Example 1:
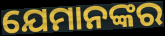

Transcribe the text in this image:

ଯେମାନଙ୍କର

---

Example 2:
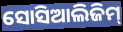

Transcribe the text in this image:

ସୋସିଆଲିଜିମ୍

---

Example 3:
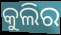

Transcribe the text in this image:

କୁଲିର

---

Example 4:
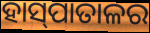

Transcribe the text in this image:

ହାସ୍‍ପାତାଳର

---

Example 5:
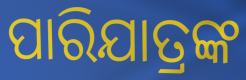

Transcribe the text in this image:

ପାରିଯାତ୍ରଙ୍କ